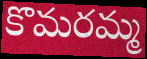
కొమరమ్మ